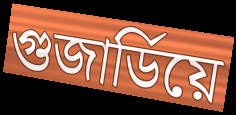
গুজাৰ্ডিয়ে